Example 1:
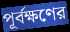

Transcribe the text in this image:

পূর্বক্ষণের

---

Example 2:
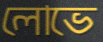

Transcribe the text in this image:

লোভে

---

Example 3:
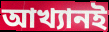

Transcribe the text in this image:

আখ্যানই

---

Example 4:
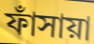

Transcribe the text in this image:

ফাঁসায়া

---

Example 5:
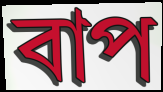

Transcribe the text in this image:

বাপ